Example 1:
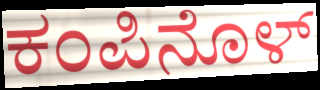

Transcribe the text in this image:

ಕಂಪಿನೊಳ್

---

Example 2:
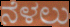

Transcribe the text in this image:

ನೆಳಲು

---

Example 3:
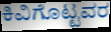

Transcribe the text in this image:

ಕಿವಿಗೊಟ್ಟವರ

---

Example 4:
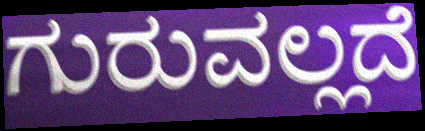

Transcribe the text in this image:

ಗುರುವಲ್ಲದೆ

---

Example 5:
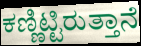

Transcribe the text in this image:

ಕಣ್ಣಿಟ್ಟಿರುತ್ತಾನೆ